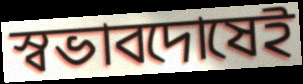
স্বভাবদোষেই